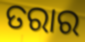
ତରାର